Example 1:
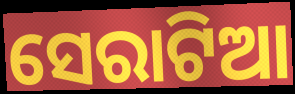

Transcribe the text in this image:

ସେରାଟିଆ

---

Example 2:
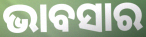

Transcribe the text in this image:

ଭାବସାର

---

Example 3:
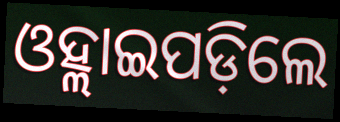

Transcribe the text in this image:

ଓହ୍ଲାଇପଡ଼ିଲେ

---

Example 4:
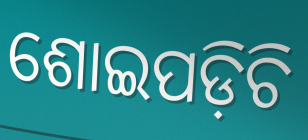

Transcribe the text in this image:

ଶୋଇପଡ଼ିଚି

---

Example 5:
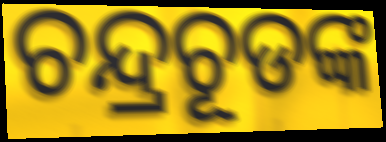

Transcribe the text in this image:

ଚନ୍ଦ୍ରଚୂଡଙ୍କ